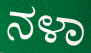
ನಳಾ